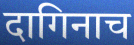
दागिनाच